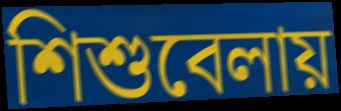
শিশুবেলায়